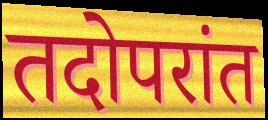
तदोपरांत